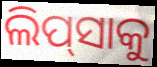
ଲିପ୍‍ସାକୁ